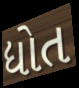
દ્યોત